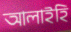
আলাইহি